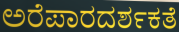
ಅರೆಪಾರದರ್ಶಕತೆ